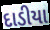
દાડીયા